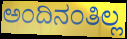
ಅಂದಿನಂತಿಲ್ಲ